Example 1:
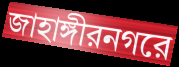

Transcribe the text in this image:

জাহাঙ্গীরনগরে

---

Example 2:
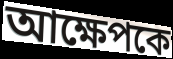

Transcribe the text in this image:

আক্ষেপকে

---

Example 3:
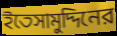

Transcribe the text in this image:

ইতেসামুদ্দিনের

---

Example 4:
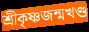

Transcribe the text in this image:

শ্রীকৃষ্ণজন্মখণ্ড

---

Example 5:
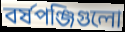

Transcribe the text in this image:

বর্ষপঞ্জিগুলো